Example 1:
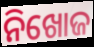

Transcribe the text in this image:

ନିଖୋଜ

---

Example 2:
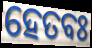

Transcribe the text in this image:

ହେତବଃ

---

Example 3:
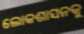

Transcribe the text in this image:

ଲୋକଶାସନକୁ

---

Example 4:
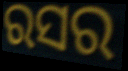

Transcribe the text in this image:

ରସର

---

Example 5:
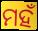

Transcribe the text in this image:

ମହଁ